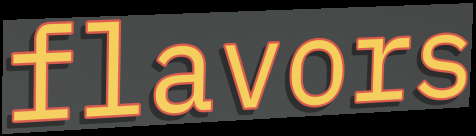
flavors